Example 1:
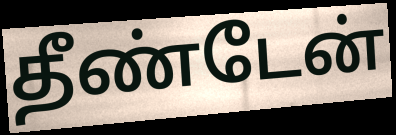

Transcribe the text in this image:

தீண்டேன்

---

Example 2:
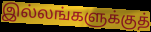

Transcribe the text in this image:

இல்லங்களுக்குத்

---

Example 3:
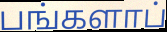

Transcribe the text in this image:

பங்களாப்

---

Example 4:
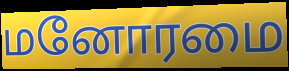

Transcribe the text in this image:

மனோரமை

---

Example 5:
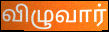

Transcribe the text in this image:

விழுவார்